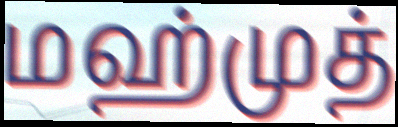
மஹ்முத்